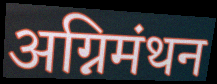
अग्निमंथन